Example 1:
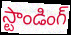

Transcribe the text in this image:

స్టాండింగ్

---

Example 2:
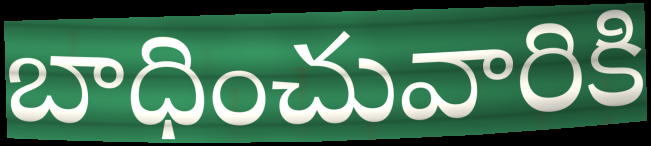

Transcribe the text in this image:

బాధించువారికి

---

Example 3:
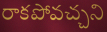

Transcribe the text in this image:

రాకపోవచ్చని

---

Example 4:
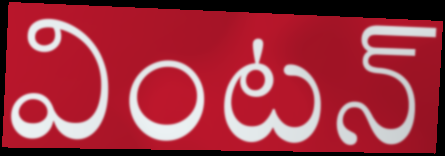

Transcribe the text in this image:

వింటన్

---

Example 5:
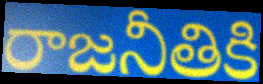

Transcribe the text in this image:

రాజనీతికి